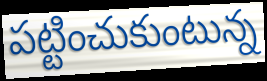
పట్టించుకుంటున్న